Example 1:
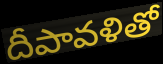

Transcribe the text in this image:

దీపావళితో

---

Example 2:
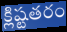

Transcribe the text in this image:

క్లిష్టతరం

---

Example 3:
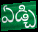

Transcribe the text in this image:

ఏడ్చి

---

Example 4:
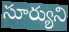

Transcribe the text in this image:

సూర్యుని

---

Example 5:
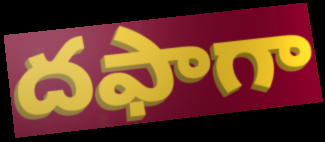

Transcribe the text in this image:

దఫాగా